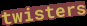
twisters